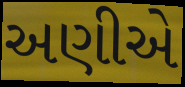
અણીએ